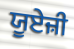
ਯੂਏਜ਼ੀ